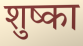
शुष्का